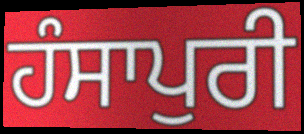
ਹੰਸਾਪੁਰੀ